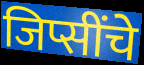
जिप्सींचे